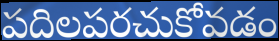
పదిలపరచుకోవడం